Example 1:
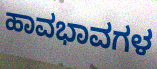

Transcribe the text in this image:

ಹಾವಭಾವಗಳ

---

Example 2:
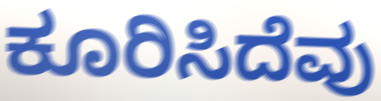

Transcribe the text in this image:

ಕೂರಿಸಿದೆವು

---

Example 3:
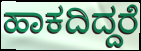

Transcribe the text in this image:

ಹಾಕದಿದ್ದರೆ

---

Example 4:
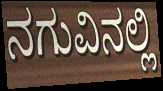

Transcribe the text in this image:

ನಗುವಿನಲ್ಲಿ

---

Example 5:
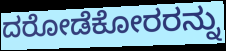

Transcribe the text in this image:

ದರೋಡೆಕೋರರನ್ನು